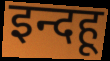
इन्दहू